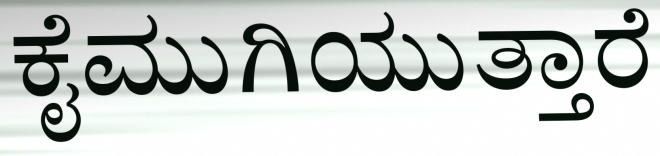
ಕೈಮುಗಿಯುತ್ತಾರೆ